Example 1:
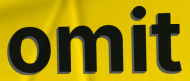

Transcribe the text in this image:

omit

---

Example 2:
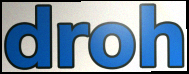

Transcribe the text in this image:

droh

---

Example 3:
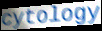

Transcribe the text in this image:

cytology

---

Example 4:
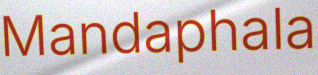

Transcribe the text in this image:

Mandaphala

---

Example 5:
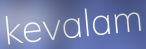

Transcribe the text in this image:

kevalam